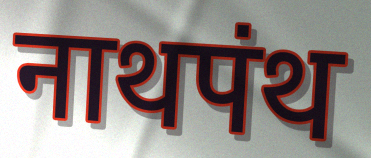
नाथपंथ